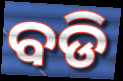
ବଡି